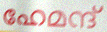
ഹേമന്ദ്